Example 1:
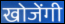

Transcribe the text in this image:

खोजेंगी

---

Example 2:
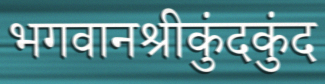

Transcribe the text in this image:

भगवानश्रीकुंदकुंद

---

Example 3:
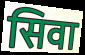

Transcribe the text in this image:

सिवा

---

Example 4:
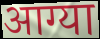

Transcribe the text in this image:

आग्या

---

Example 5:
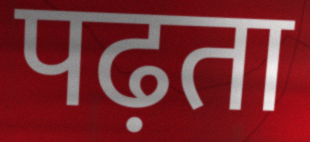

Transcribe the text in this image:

पढ़ता